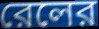
রেলের